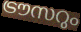
ട്രൗസറും